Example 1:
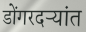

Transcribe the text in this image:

डोंगरदऱ्यांत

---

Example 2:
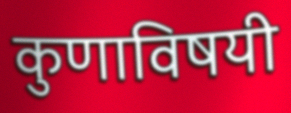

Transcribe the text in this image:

कुणाविषयी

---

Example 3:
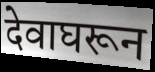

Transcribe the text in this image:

देवाघरून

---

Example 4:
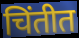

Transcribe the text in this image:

चिंतीत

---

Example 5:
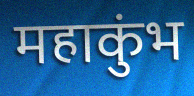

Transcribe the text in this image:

महाकुंभ